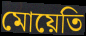
মোয়েতি